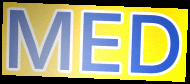
MED